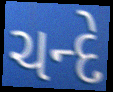
ચન્દે